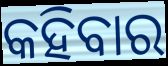
କହିବାର